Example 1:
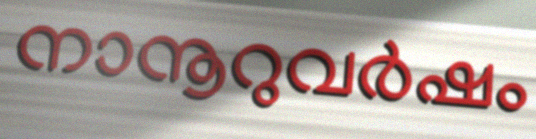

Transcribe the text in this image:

നാനൂറുവർഷം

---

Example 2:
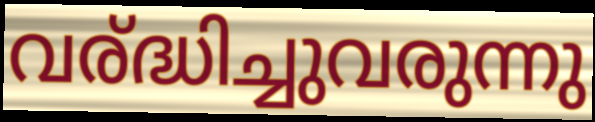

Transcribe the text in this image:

വര്ദ്ധിച്ചുവരുന്നു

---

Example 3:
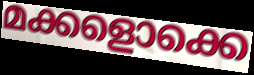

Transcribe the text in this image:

മക്കളൊക്കെ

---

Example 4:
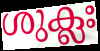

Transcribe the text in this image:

ശുക്ലഃ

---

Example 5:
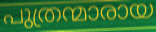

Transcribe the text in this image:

പുത്രന്മാരായ